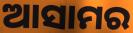
ଆସାମର